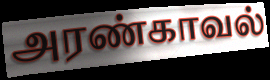
அரண்காவல்